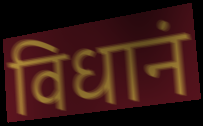
विधानं